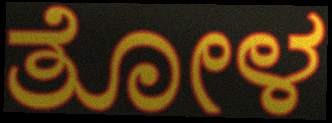
ತೋಳ